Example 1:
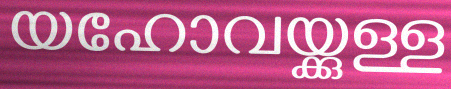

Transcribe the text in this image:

യഹോവയ്ക്കുള്ള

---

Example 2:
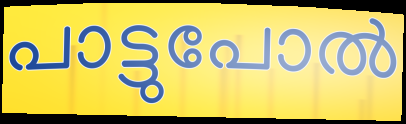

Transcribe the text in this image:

പാട്ടുപോൽ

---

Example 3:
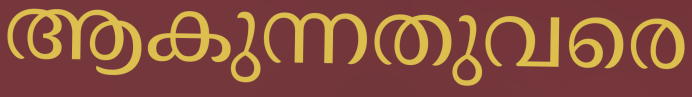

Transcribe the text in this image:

ആകുന്നതുവരെ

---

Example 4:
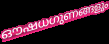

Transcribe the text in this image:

ഔഷധഗുണങ്ങളും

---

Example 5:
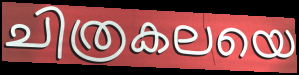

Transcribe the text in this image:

ചിത്രകലയെ